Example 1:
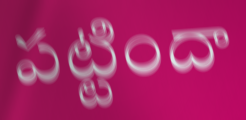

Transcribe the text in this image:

పట్టిందా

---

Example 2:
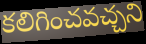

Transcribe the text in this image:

కలిగించవచ్చని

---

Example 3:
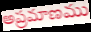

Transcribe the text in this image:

అప్రమాణము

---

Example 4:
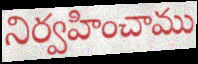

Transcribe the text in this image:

నిర్వహించాము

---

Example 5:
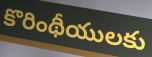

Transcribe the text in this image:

కొరింథీయులకు